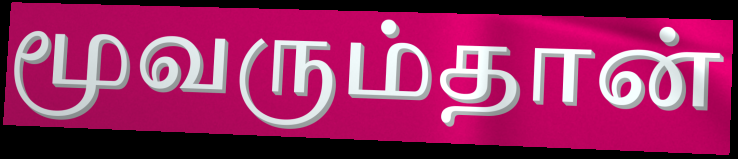
மூவரும்தான்